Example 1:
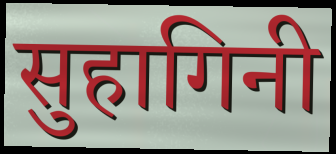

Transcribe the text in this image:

सुहागिनी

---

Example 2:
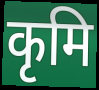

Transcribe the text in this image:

कृमि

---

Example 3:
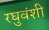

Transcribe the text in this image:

रघुवंशी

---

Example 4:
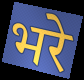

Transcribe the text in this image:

भरे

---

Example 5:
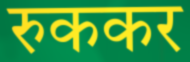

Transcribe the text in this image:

रुककर